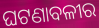
ଘଟଣାବଳୀର